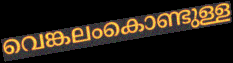
വെങ്കലംകൊണ്ടുള്ള